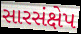
સારસંક્ષેપ